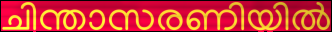
ചിന്താസരണിയിൽ